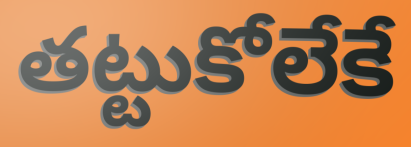
తట్టుకోలేకే